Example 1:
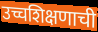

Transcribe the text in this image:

उच्चशिक्षणाची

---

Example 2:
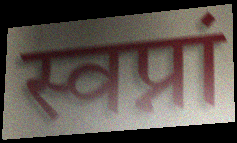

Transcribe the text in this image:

स्वप्नां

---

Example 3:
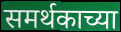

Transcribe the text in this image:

समर्थकाच्या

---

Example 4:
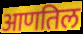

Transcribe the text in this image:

आणतिल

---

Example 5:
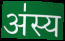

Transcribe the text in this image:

अ॑स्य